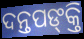
ଦନ୍ତପଙ୍‍କ୍ତି